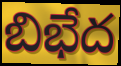
బిభేద